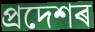
প্ৰদেশৰ